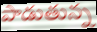
పాడుతున్న